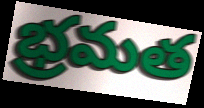
భ్రమత